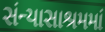
સંન્યાસાશ્રમમાં